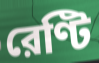
রেণ্টি